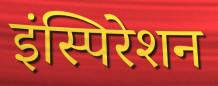
इंस्पिरेशन